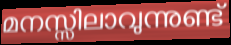
മനസ്സിലാവുന്നുണ്ട്